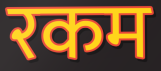
रकम